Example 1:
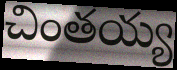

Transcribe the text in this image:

చింతయ్య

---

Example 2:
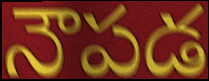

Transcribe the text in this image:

నౌపడ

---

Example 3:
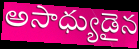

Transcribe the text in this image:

అసాధ్యుడైన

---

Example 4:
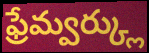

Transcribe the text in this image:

ఫ్రేమ్వర్క్లు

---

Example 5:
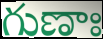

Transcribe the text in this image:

గుణాః